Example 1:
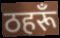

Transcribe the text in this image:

ठहरूँ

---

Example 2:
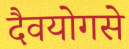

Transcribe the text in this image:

दैवयोगसे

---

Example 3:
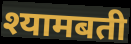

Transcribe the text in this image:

श्यामबती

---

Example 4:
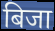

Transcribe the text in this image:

बिजा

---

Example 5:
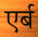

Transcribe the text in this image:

एर्ब